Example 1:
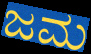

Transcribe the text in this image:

ಜಮ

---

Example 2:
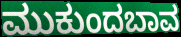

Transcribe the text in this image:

ಮುಕುಂದಬಾವ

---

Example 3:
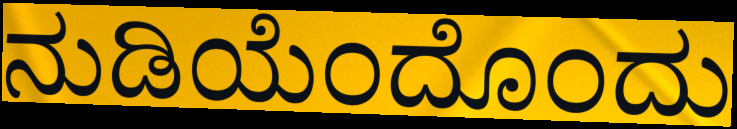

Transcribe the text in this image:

ನುಡಿಯೆಂದೊಂದು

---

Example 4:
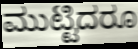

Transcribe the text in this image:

ಮುಟ್ಟಿದರೂ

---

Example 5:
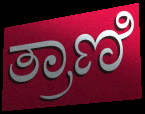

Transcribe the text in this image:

ತ್ರಾಣಿ